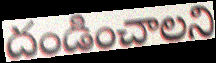
దండించాలని